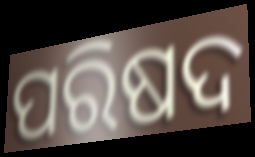
ପରିଷଦ